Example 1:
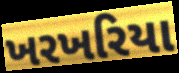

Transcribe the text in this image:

ખરખરિયા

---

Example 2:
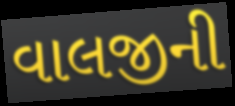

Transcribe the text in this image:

વાલજીની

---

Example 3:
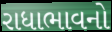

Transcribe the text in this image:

રાધાભાવનો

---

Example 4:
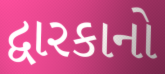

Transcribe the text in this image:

દ્વારકાનો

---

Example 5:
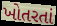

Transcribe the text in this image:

ખોતરતાં